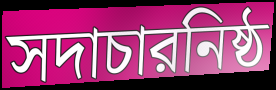
সদাচারনিষ্ঠ